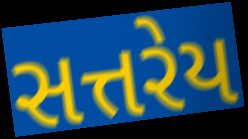
સત્તરેય